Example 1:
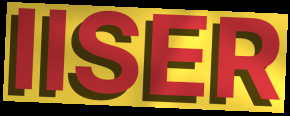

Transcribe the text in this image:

IISER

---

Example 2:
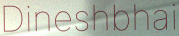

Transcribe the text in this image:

Dineshbhai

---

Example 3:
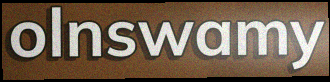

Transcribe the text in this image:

olnswamy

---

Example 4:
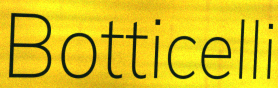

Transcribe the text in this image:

Botticelli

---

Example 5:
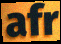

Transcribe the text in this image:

afr